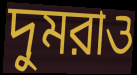
দুমরাও